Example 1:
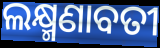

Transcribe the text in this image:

ଲକ୍ଷ୍ମଣାବତୀ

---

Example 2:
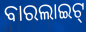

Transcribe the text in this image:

ବାରଲାଇଟ୍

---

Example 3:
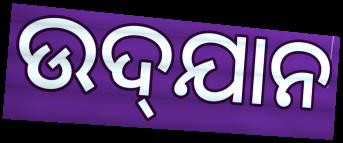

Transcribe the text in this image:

ଉଦ୍‌ଯାନ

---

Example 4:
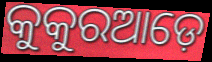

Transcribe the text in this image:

କୁକୁରଆଡ଼େ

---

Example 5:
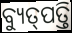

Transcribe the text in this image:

ବ୍ୟୁତ୍‌ପତ୍ତି